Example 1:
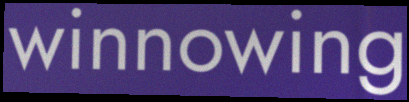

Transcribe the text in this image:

winnowing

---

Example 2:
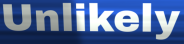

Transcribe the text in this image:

Unlikely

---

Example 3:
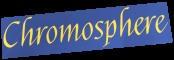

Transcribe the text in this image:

Chromosphere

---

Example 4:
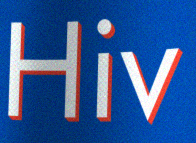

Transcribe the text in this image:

Hiv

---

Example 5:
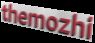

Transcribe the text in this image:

themozhi